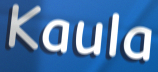
Kaula